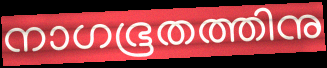
നാഗഭൂതത്തിനു